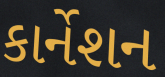
કાર્નેશન